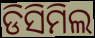
ଡିସିମିଲ